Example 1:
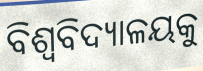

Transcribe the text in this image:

ବିଶ୍ବବିଦ୍ୟାଳୟକୁ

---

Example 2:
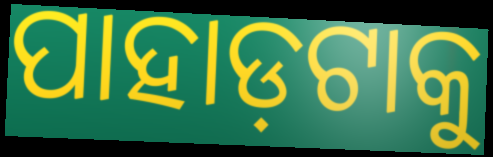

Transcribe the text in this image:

ପାହାଡ଼ଟାକୁ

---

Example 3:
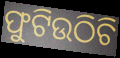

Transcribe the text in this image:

ଫୁଟିଉଠିଚି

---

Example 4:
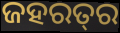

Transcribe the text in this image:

ଜହରତ୍‌ର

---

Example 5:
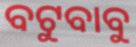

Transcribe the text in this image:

ବଟୁବାବୁ